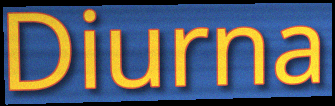
Diurna